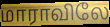
மாராவிலே